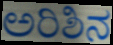
ಅರಿಶಿನ